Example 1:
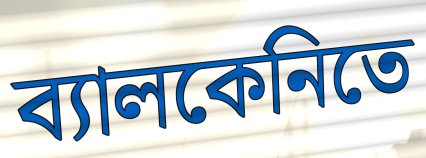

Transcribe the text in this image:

ব্যালকেনিতে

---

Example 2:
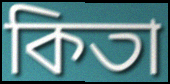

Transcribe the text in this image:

কিতা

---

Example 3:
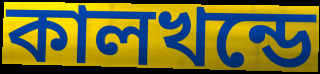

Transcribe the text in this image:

কালখন্ডে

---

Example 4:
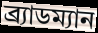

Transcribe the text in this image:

ব্র্যাডম্যান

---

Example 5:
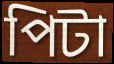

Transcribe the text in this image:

পিটা